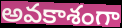
అవకాశంగా